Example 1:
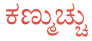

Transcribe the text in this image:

ಕಣ್ಮುಚ್ಚು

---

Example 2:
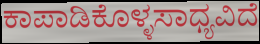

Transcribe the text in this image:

ಕಾಪಾಡಿಕೊಳ್ಳಸಾಧ್ಯವಿದೆ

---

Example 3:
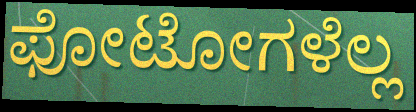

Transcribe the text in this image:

ಫೋಟೋಗಳೆಲ್ಲ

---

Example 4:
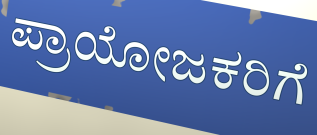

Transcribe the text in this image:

ಪ್ರಾಯೋಜಕರಿಗೆ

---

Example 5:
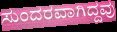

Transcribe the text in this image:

ಸುಂದರವಾಗಿದ್ದವು